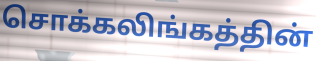
சொக்கலிங்கத்தின்